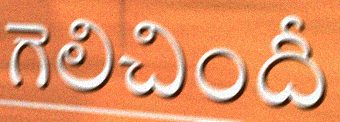
గెలిచిందీ